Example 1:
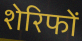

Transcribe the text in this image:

शेरिफों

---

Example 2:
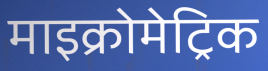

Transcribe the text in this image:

माइक्रोमेट्रिक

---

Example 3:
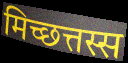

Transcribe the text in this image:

मिच्छत्तस्स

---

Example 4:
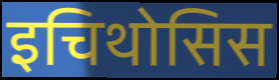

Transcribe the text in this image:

इचिथोसिस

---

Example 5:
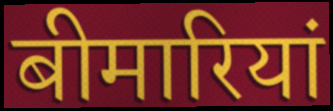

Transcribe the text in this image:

बीमारियां